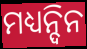
ମଧ୍ୟନ୍ଦିନ